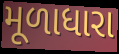
મૂળાધારા